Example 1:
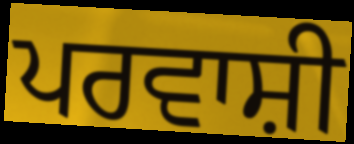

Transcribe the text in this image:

ਪਰਵਾਸ਼ੀ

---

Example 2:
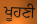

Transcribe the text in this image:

ਖੂਹਣੀ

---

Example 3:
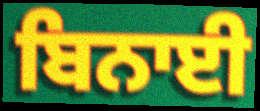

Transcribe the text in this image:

ਬਿਨਾਈ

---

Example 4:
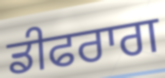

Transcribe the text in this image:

ਡੀਫਰਾਗ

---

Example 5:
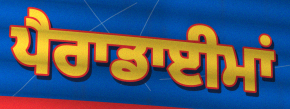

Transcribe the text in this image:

ਪੈਰਾਡਾਈਮਾਂ